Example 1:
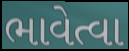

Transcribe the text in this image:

ભાવેત્વા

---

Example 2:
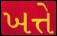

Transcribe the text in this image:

ખત્તે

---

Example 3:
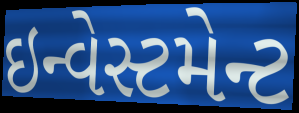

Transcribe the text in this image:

ઇન્વેસ્ટમેન્ટ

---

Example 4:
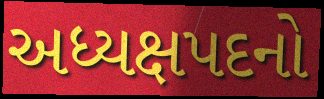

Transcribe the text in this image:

અધ્યક્ષપદનો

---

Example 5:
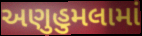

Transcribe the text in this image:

અણુહુમલામાં